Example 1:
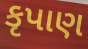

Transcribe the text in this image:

કૃપાણ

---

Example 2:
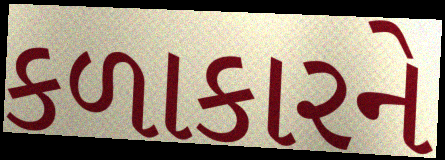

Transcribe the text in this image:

કળાકારને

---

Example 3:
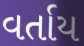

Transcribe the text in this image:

વર્તાય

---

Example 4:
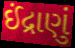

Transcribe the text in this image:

ઈંદ્રાણું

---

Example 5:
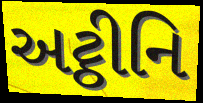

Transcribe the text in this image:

અટ્ઠીનિ